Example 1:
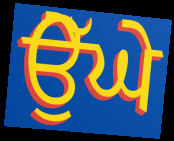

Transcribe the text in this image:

ਉੇੱਘੇ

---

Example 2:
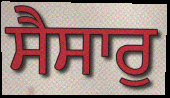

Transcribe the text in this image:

ਸੈਸਾਰੁ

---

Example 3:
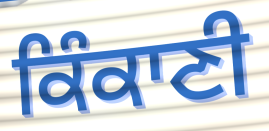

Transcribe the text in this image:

ਕਿੰਕਾਣੀ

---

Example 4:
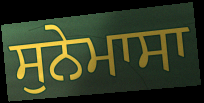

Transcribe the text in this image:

ਸੁਨੇਮਾਸਾ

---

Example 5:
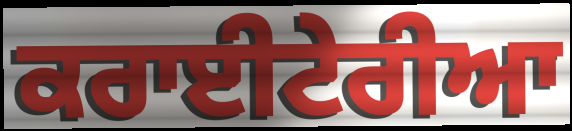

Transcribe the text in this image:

ਕਰਾਈਟੇਰੀਆ